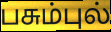
பசும்புல்